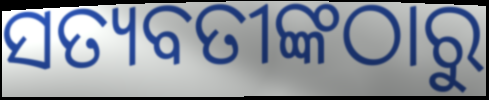
ସତ୍ୟବତୀଙ୍କଠାରୁ